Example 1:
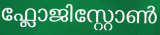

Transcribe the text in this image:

ഫ്ലോജിസ്റ്റോൺ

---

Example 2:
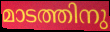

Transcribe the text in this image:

മാടത്തിനു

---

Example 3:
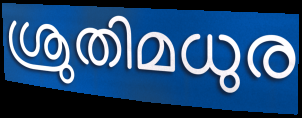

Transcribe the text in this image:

ശ്രുതിമധുര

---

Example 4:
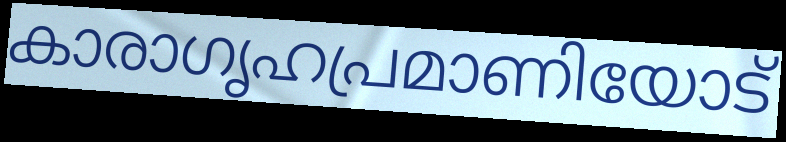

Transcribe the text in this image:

കാരാഗൃഹപ്രമാണിയോട്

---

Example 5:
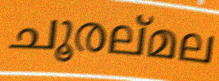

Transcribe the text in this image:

ചൂരല്മല